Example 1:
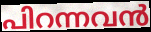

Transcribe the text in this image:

പിറന്നവൻ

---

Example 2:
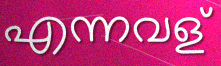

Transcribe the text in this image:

എന്നവള്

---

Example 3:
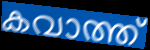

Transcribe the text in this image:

കവാത്ത്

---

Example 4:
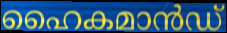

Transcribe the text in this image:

ഹൈകമാൻഡ്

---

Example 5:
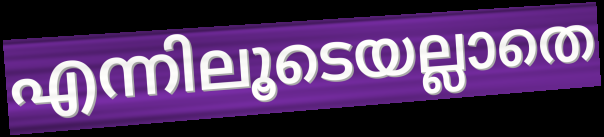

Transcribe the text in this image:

എന്നിലൂടെയല്ലാതെ